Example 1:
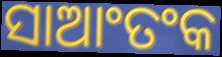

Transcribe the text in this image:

ସାଆଂତଂକ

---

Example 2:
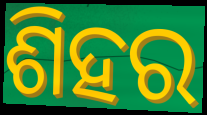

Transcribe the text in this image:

ଶିହର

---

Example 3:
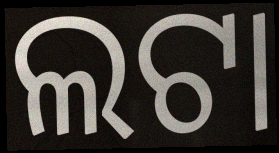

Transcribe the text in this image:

ଲଟା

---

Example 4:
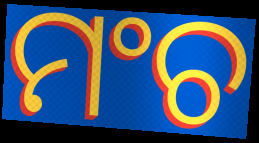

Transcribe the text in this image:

ମଂଚ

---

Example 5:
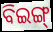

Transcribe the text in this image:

ବିଇଙ୍ଗ୍